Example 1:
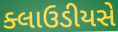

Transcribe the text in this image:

ક્લાઉડીયસે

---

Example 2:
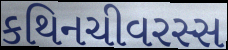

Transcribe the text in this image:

કથિનચીવરસ્સ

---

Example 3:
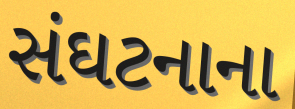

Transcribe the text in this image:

સંઘટનાના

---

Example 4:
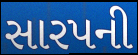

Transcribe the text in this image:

સારપની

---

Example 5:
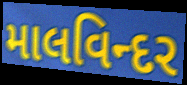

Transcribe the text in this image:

માલવિન્દર